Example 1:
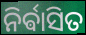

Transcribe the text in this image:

ନିର୍ଵାସିତ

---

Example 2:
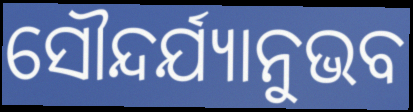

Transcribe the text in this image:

ସୌନ୍ଦର୍ଯ୍ୟାନୁଭବ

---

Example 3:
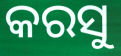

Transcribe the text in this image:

କରସୁ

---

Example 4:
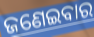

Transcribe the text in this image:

ଜଣେଇବାର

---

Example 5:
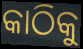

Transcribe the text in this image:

କାଠିକୁ